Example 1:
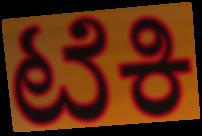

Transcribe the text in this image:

ಟೆಕಿ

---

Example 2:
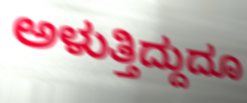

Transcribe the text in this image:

ಅಳುತ್ತಿದ್ದುದೂ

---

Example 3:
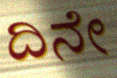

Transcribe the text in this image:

ದಿನೇ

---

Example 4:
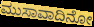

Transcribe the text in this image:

ಮುಸಾವಾದಿನೋ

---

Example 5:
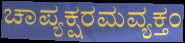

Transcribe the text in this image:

ಚಾಪ್ಯಕ್ಷರಮವ್ಯಕ್ತಂ